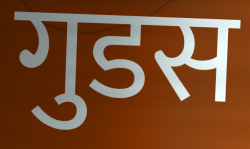
गुडस